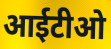
आईटीओ